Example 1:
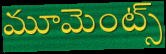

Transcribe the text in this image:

మూమెంట్స్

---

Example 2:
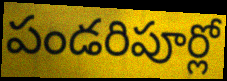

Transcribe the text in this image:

పండరిపూర్లో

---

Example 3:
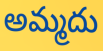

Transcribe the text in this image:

అమ్మదు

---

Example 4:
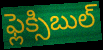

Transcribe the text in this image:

ఫ్లెక్సిబుల్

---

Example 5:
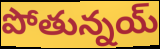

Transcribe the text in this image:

పోతున్నయ్